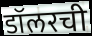
डॉलरची